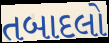
તબાદલો